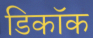
डिकॉक